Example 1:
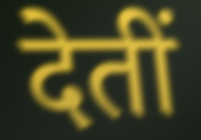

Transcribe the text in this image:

देतीं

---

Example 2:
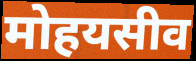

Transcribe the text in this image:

मोहयसीव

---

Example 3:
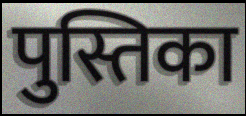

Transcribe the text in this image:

पुस्तिका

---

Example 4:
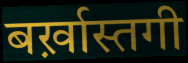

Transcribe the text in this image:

बर्ख़ास्तगी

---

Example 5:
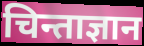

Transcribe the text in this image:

चिन्ताज्ञान